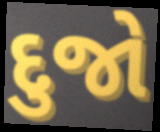
દુજો